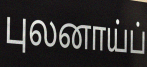
புலனாய்ப்